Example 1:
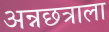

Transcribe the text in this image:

अन्नछत्राला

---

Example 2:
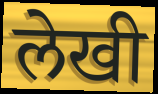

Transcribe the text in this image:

लेखी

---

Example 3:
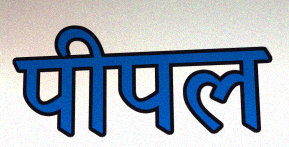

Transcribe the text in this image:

पीपल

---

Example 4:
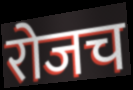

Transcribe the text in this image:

रोजच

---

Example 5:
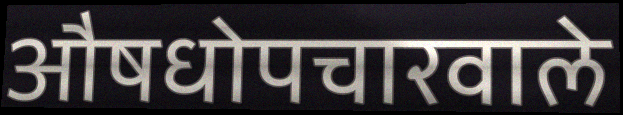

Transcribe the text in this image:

औषधोपचारवाले